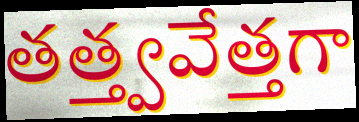
తత్త్వవేత్తగా